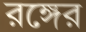
রঙ্গের